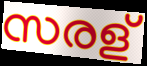
സരള്